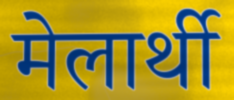
मेलार्थी